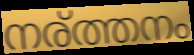
നര്ത്തനം